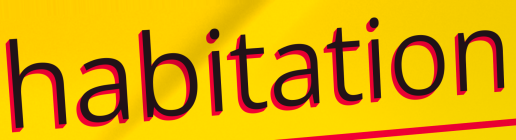
habitation